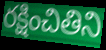
రక్షించితిని